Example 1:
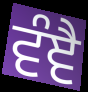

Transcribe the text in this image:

ਵੰਞੈ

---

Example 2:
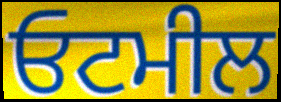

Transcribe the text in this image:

ਓਟਮੀਲ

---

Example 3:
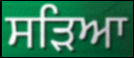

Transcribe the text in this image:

ਸੜਿਆ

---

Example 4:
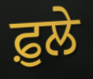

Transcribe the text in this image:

ਫ਼ੁਲੇ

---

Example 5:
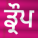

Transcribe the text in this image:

ਡ੍ਰੌਪ